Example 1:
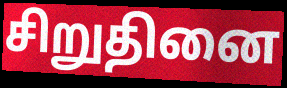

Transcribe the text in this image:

சிறுதினை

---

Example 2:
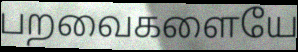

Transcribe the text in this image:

பறவைகளையே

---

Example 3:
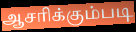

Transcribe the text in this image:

ஆசரிக்கும்படி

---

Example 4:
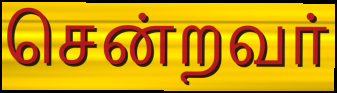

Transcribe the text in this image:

சென்றவர்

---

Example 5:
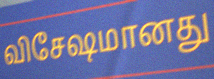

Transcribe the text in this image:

விசேஷமானது